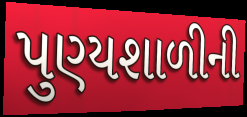
પુણ્યશાળીની